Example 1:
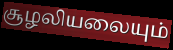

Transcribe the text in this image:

சூழலியலையும்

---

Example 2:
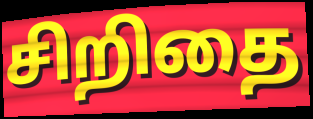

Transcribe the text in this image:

சிறிதை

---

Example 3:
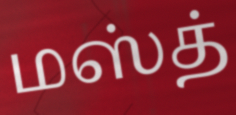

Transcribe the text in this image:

மஸ்த்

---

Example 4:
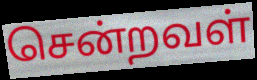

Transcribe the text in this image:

சென்றவள்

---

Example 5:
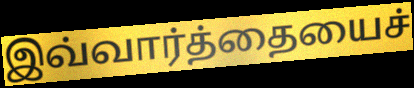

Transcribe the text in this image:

இவ்வார்த்தையைச்